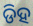
ଡିହ